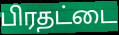
பிரதட்டை